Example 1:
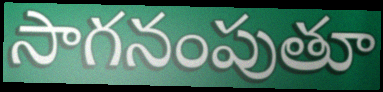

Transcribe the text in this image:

సాగనంపుతూ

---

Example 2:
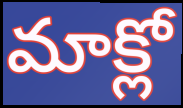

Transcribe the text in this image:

మాక్లో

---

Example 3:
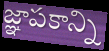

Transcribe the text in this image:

జ్ఞాపకాన్ని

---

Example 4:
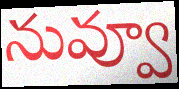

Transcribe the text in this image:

నువ్వూ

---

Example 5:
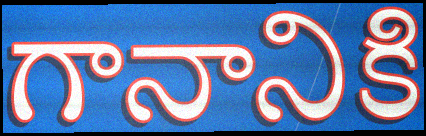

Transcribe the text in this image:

గానానికి